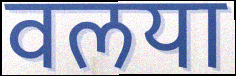
वलया